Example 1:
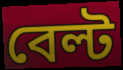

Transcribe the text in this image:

বেল্ট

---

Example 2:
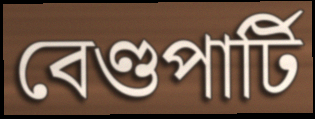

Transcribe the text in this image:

বেণ্ডপাৰ্টি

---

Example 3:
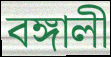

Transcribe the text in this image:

বঙ্গালী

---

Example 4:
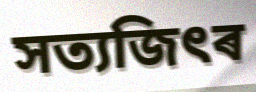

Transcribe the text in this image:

সত্যজিৎৰ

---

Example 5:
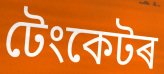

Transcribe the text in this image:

টেংকেটৰ